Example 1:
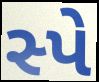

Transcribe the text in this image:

સ્પે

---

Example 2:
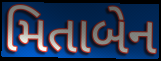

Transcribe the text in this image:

મિતાબેન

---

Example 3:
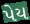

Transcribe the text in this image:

પેય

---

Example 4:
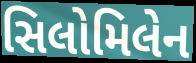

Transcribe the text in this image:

સિલોમિલેન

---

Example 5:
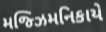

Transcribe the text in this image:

મજ્ઝિમનિકાયે